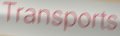
Transports